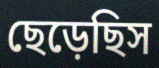
ছেড়েছিস